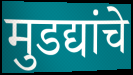
मुडद्यांचे